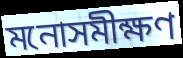
মনোসমীক্ষণ